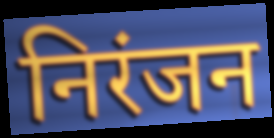
निरंजन